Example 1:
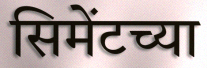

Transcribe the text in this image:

सिमेंटच्या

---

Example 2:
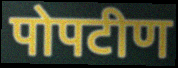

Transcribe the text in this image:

पोपटीण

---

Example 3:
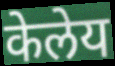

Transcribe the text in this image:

केलेय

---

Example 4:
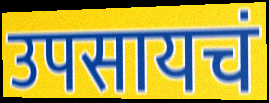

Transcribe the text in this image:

उपसायचं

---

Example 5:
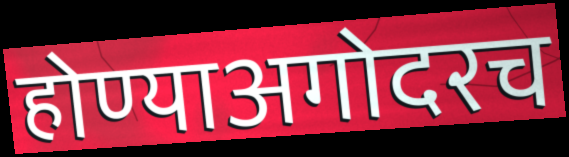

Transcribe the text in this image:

होण्याअगोदरच